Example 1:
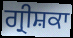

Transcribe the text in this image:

ਗ੍ਰੀਸ਼ਕਾ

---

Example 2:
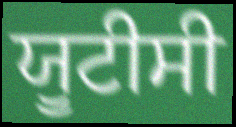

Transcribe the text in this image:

ਯੂਟੀਸੀ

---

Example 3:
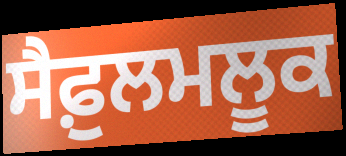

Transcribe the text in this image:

ਸੈਫ਼ੁਲਮਲੂਕ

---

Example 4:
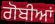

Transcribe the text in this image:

ਗੋਬੀਆਂ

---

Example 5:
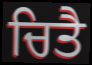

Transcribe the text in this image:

ਚਿਤੈ